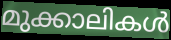
മുക്കാലികൾ